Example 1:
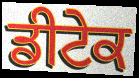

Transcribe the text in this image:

ਡੀਟੇਕ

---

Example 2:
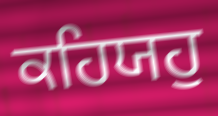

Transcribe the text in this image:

ਕਹਿਯਹੁ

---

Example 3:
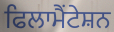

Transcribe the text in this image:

ਫਿਲਾਮੈਂਟੇਸ਼ਨ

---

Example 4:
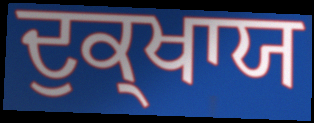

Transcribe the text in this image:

ਦੁਕ੍ਖਾਯ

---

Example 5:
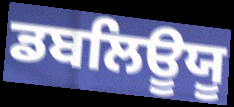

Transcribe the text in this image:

ਡਬਲਿਊਯੂ